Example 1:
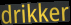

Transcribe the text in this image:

drikker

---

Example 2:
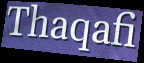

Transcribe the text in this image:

Thaqafi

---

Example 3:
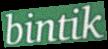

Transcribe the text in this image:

bintik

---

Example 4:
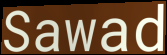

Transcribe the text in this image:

Sawad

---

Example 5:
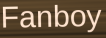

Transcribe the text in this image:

Fanboy